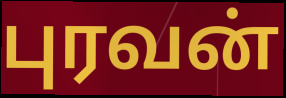
புரவன்